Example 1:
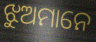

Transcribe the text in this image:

ଝୁଅମାନେ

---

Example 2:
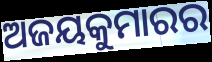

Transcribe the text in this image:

ଅଜୟକୁମାରର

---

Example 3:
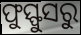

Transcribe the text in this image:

ଫୁସ୍ଫୁସରୁ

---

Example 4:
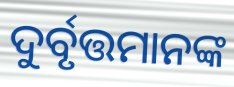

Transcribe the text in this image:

ଦୁର୍ବୃତ୍ତମାନଙ୍କ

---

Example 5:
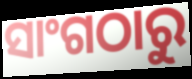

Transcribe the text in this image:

ସାଂଗଠାରୁ